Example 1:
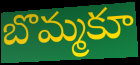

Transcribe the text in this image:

బొమ్మకూ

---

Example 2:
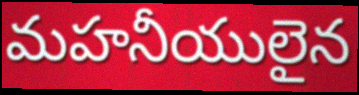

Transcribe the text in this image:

మహనీయులైన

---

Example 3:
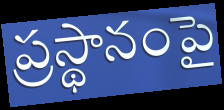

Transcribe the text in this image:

ప్రస్థానంపై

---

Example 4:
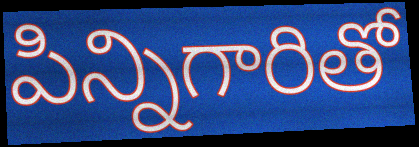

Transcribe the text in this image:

పిన్నిగారితో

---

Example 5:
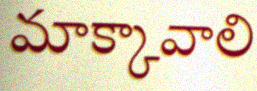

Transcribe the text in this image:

మాక్కావాలి